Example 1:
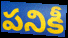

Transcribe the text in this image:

పనికీ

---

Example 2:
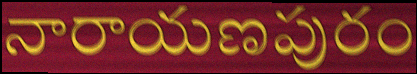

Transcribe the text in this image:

నారాయణపురం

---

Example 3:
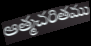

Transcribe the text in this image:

ఆత్మచరితము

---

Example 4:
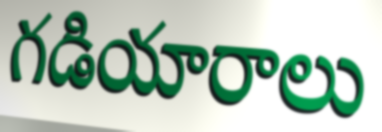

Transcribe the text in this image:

గడియారాలు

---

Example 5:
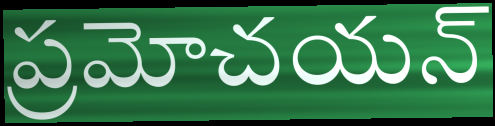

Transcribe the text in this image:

ప్రమోచయన్